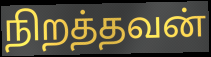
நிறத்தவன்